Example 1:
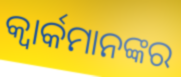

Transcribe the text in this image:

କ୍ୱାର୍କମାନଙ୍କର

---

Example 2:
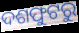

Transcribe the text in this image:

ଦଶଫୁଟରୁ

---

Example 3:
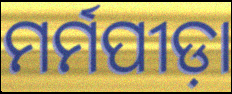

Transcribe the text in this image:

ମର୍ମପୀଡ଼ା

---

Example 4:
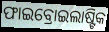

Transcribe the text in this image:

ଫାଇବ୍ରୋଇଲାଷ୍ଟିକ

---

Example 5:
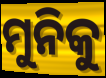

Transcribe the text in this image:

ମୁନିକୁ